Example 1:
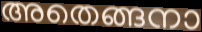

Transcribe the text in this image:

അതെങ്ങനാ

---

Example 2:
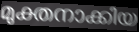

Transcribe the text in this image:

മുക്തനാക്കിയ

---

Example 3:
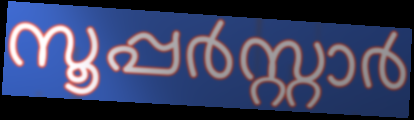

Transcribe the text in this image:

സൂപ്പർസ്റ്റാർ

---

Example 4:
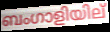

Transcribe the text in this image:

ബംഗാളിയില്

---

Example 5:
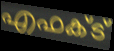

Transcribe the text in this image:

എഫക്ട്